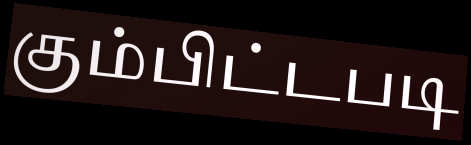
கும்பிட்டபடி